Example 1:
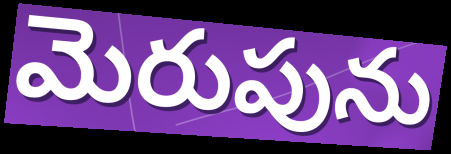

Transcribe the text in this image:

మెరుపును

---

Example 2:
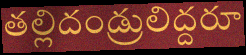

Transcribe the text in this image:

తల్లిదండ్రులిద్దరూ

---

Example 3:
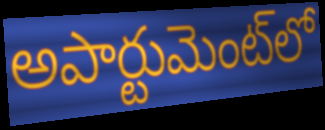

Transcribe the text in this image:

అపార్టుమెంట్‌లో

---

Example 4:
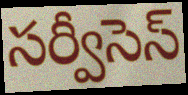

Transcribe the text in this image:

సర్వీసెస్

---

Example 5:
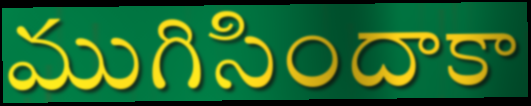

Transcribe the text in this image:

ముగిసిందాకా